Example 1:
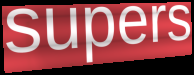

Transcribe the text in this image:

supers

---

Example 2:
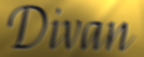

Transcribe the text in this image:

Divan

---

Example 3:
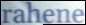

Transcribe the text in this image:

rahene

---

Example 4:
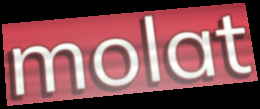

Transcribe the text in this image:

molat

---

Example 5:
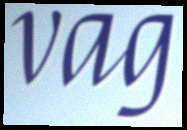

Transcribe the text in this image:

vag